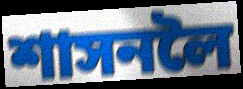
শাসনলৈ